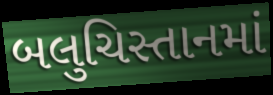
બલુચિસ્તાનમાં